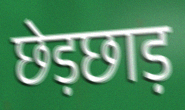
छेड़छाड़